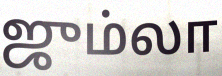
ஜும்லா